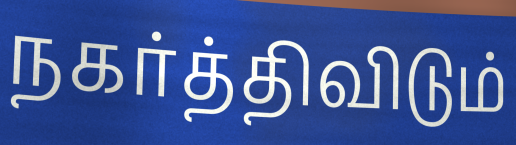
நகர்த்திவிடும்